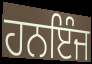
ਹਨਇੰਜ